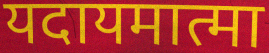
यदायमात्मा